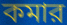
কমার